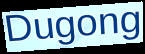
Dugong